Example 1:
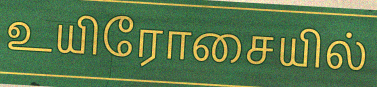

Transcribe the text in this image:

உயிரோசையில்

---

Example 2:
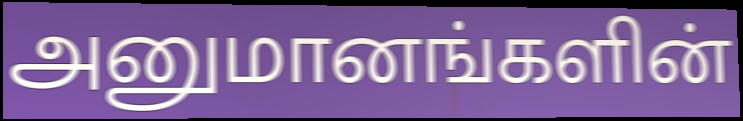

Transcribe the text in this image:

அனுமானங்களின்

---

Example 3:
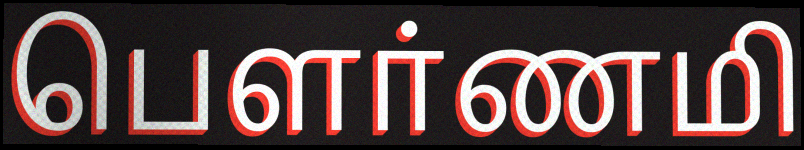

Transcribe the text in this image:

பௌர்ணமி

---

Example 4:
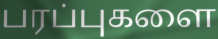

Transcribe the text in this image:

பரப்புகளை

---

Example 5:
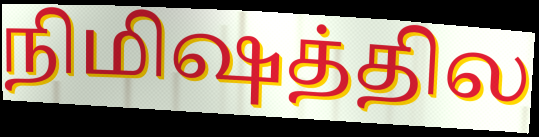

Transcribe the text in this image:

நிமிஷத்தில